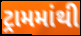
ટ્રામમાંથી